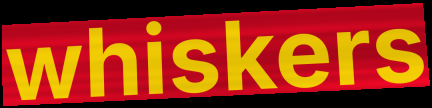
whiskers